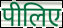
पीलिए